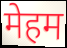
मेहम